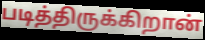
படித்திருக்கிறான்